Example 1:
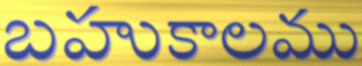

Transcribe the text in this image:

బహుకాలము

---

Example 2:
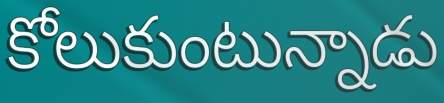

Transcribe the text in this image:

కోలుకుంటున్నాడు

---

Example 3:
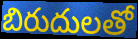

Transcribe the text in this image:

బిరుదులతో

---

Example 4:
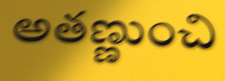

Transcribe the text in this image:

అతణ్ణుంచి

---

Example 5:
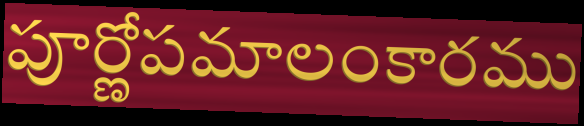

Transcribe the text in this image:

పూర్ణోపమాలంకారము